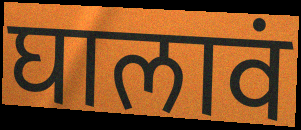
घालावं